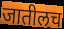
जातीलच